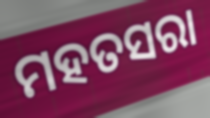
ମହତସରା